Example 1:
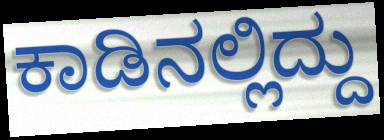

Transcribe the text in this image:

ಕಾಡಿನಲ್ಲಿದ್ದು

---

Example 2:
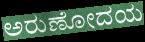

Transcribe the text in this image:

ಅರುಣೋದಯ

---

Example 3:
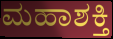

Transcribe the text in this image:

ಮಹಾಶಕ್ತಿ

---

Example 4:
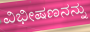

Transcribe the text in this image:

ವಿಭೀಷಣನನ್ನು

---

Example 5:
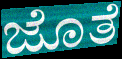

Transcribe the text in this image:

ಜೊತೆ